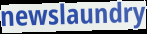
newslaundry